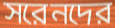
সরেনদের